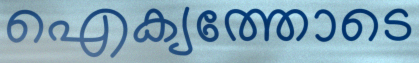
ഐക്യത്തോടെ